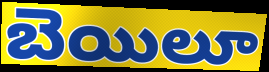
బెయిలూ